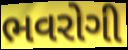
ભવરોગી